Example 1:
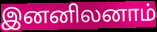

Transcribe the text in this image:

இனனிலனாம்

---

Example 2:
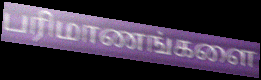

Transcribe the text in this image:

பரிமாணங்களை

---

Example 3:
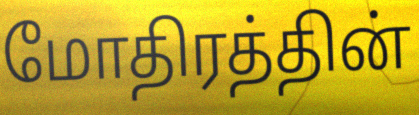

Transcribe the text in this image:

மோதிரத்தின்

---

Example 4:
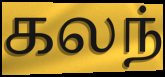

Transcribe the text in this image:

கலந்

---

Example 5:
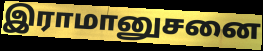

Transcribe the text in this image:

இராமானுசனை